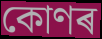
কোণৰ